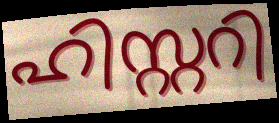
ഹിസ്റ്ററി